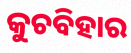
କୁଚବିହାର